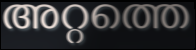
അറ്റത്തെ